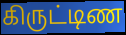
கிருட்டிண